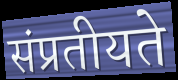
संप्रतीयते